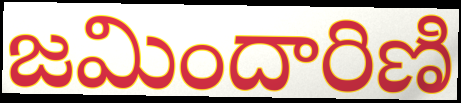
జమిందారిణి